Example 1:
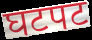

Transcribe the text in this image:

घटपट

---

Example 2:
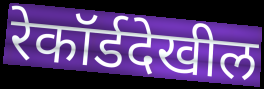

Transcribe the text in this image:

रेकॉर्डदेखील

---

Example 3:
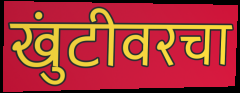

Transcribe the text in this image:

खुंटीवरचा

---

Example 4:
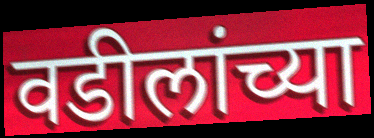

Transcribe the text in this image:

वडीलांच्या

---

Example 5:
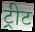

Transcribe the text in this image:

ट्रीट